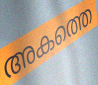
അകത്തെ